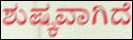
ಶುಷ್ಕವಾಗಿದೆ